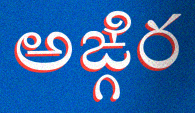
అఙ్గిర